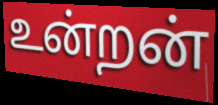
உன்றன்